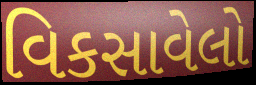
વિકસાવેલો